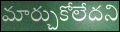
మార్చుకోలేదని